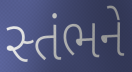
સ્તંભને